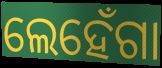
ଲେହେଁଗା